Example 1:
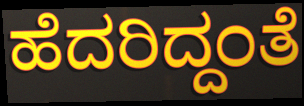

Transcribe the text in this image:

ಹೆದರಿದ್ದಂತೆ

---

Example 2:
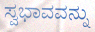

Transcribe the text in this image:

ಸ್ವಭಾವವನ್ನು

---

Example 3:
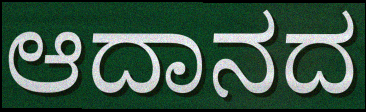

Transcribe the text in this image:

ಆದಾನದ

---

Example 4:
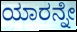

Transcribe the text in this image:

ಯಾರನ್ನೇ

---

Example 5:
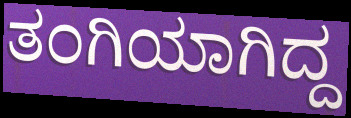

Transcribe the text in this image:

ತಂಗಿಯಾಗಿದ್ದ